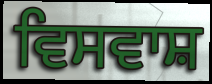
ਵਿਸਵਾਸ਼